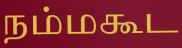
நம்மகூட